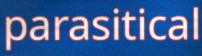
parasitical